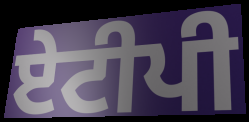
ਏਟੀਪੀ